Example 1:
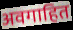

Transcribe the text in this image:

अवगाहित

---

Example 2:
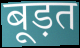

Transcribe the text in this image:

बूड़त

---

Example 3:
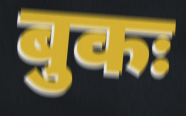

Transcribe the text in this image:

बुकः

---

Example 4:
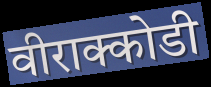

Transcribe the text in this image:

वीराक्कोडी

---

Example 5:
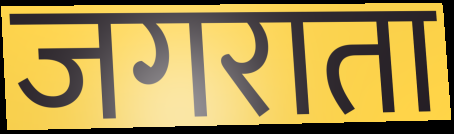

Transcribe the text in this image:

जगराता